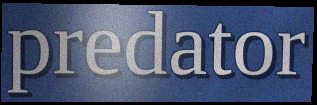
predator